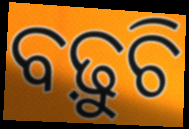
ବଢ଼ୁଚି